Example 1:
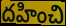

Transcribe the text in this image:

దహించి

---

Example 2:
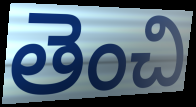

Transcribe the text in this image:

తెంచి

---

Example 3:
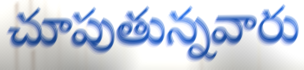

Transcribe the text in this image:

చూపుతున్నవారు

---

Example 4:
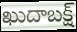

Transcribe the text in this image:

ఖుదాబక్ష్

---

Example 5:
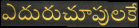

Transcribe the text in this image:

ఎదురుచూపులకే